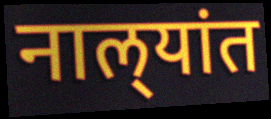
नाल्यांत